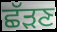
ਛੱੜਣ